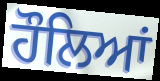
ਹੌਲਿਆਂ